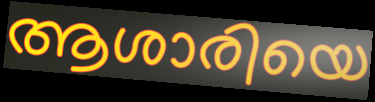
ആശാരിയെ